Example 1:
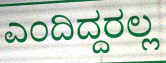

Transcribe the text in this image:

ಎಂದಿದ್ದರಲ್ಲ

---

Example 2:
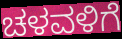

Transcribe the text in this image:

ಚಳವಳಿಗೆ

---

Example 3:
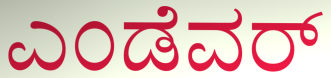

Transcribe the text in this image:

ಎಂಡೆವರ್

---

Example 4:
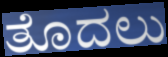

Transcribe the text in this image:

ತೊದಲು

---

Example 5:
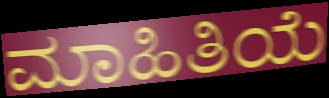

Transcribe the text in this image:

ಮಾಹಿತಿಯೆ